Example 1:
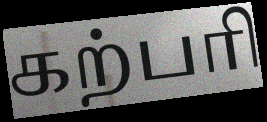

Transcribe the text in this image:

கற்பரி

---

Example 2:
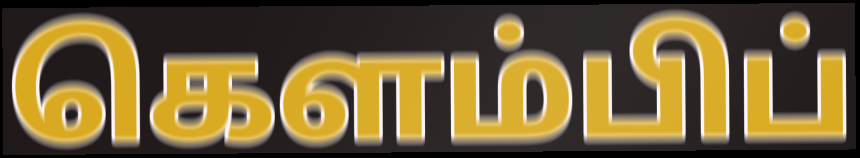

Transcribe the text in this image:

கௌம்பிப்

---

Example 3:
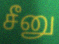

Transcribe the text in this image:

சீனு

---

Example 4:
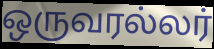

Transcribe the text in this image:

ஒருவரல்லர்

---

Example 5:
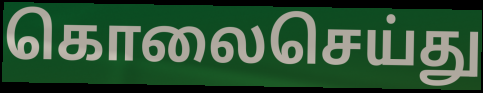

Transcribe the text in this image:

கொலைசெய்து